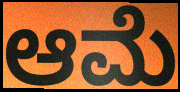
ಆಮೆ